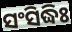
ସଂସିଦ୍ଧିଃ